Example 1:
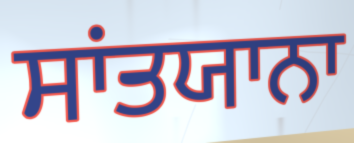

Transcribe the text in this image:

ਸਾਂਤਯਾਨਾ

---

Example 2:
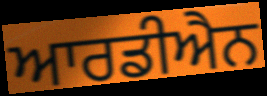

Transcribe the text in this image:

ਆਰਡੀਐਨ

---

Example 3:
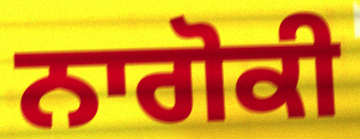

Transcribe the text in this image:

ਨਾਗੋਕੀ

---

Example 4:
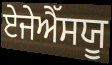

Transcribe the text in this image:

ਏਜੇਐੱਸਯੂ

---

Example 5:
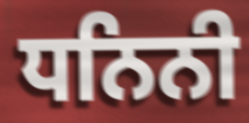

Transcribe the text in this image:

ਧਨਿਨੀ